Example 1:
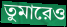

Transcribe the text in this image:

তুমারেও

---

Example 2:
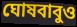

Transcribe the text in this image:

ঘোষবাবুও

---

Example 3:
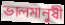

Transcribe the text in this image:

ভালমানুষী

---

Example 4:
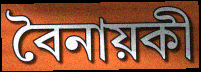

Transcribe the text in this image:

বৈনায়কী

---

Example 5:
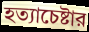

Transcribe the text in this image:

হত্যাচেষ্টার